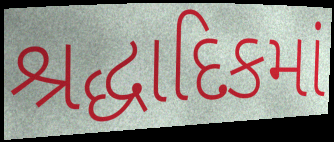
શ્રદ્ધાદિકમાં